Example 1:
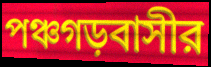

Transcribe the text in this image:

পঞ্চগড়বাসীর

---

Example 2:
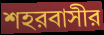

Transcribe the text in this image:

শহরবাসীর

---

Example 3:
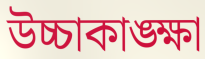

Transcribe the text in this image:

উচ্চাকাঙ্ক্ষা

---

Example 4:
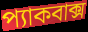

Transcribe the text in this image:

প্যাকবাক্স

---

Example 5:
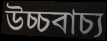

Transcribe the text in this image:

উচ্চবাচ্য